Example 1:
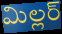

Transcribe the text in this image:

మిల్లర్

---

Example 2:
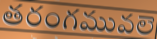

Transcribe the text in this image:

తరంగమువలె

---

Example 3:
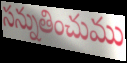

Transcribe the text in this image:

సన్నుతించుము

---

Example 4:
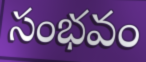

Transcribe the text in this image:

సంభవం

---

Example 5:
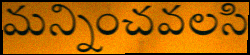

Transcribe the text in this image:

మన్నించవలసి